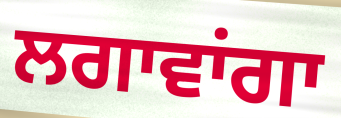
ਲਗਾਵਾਂਗਾ